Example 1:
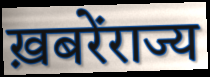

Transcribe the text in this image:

ख़बरेंराज्य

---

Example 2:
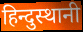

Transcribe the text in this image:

हिन्दुस्थानी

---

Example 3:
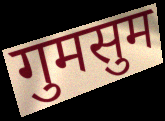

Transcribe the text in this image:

गुमसुम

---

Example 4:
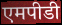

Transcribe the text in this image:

एमपीडी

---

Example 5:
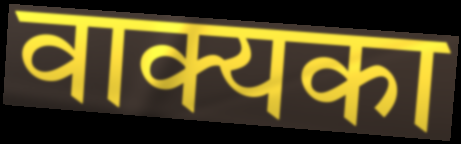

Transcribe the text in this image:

वाक्यका